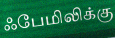
ஃபேமிலிக்கு